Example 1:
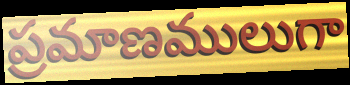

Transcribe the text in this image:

ప్రమాణములుగా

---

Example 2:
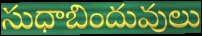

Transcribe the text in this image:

సుధాబిందువులు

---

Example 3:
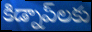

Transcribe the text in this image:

కిడ్నాప్‌లకు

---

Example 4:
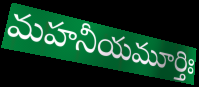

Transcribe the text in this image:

మహనీయమూర్తిః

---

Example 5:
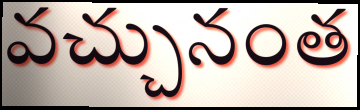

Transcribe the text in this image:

వచ్చునంత